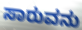
ಸಾರುವನು